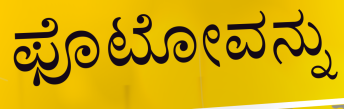
ಫೊಟೋವನ್ನು